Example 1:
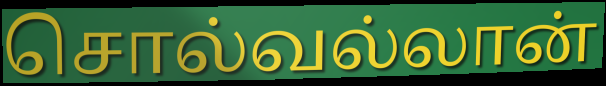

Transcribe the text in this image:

சொல்வல்லான்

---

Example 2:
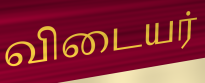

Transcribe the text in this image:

விடையர்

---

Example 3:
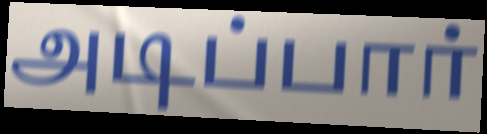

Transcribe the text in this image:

அடிப்பார்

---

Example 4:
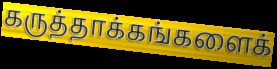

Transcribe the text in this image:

கருத்தாக்கங்களைக்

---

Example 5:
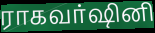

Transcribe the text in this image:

ராகவர்ஷினி